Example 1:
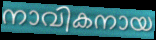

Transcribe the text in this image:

നാവികനായ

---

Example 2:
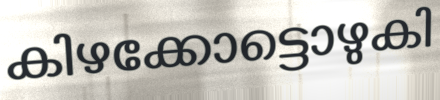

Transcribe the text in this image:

കിഴക്കോട്ടൊഴുകി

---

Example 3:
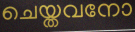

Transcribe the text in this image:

ചെയ്തവനോ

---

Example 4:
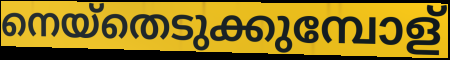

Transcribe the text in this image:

നെയ്തെടുക്കുമ്പോള്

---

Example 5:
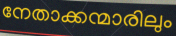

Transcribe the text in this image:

നേതാക്കന്മാരിലും